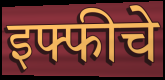
इफ्फीचे